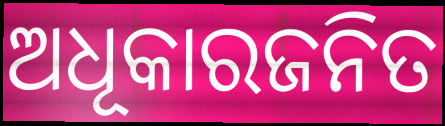
ଅଧୂକାରଜନିତ